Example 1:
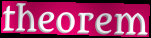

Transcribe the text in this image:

theorem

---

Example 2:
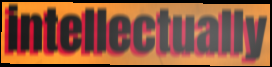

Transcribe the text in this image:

intellectually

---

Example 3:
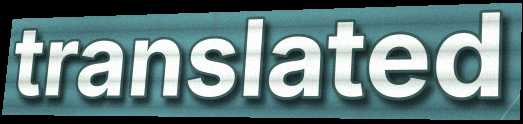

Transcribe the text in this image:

translated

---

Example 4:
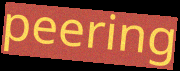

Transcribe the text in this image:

peering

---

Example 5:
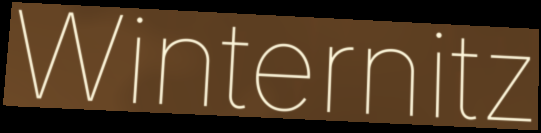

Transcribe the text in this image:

Winternitz